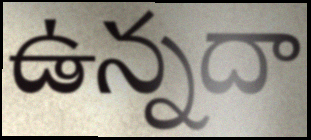
ఉన్నదా